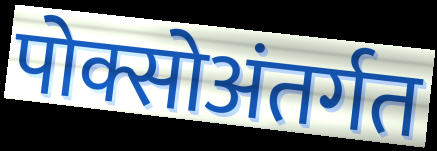
पोक्सोअंतर्गत